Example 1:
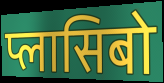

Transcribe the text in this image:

प्लासिबो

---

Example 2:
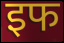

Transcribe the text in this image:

इफ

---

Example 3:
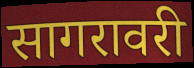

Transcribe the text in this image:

सागरावरी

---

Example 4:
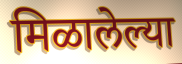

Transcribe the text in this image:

मिळालेल्या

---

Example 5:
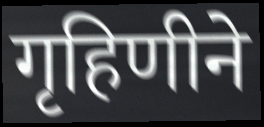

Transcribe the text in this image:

गृहिणीने